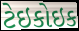
ટેઇકોઇક